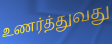
உணர்த்துவது